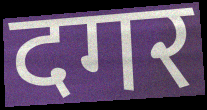
दगर